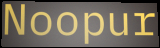
Noopur